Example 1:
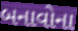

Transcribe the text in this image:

બનાવોના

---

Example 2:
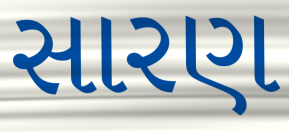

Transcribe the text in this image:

સારણ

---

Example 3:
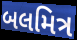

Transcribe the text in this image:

બલમિત્ર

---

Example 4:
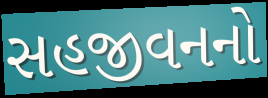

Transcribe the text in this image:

સહજીવનનો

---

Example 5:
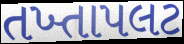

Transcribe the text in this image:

તખ્તાપલટ